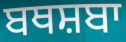
ਬਥਸ਼ਬਾ